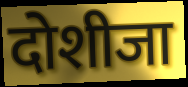
दोशीजा